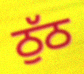
ਠੁੱਠ